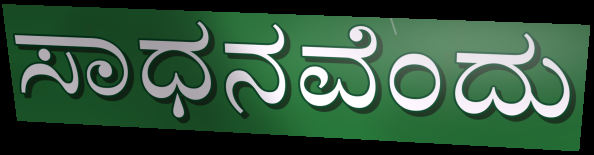
ಸಾಧನವೆಂದು